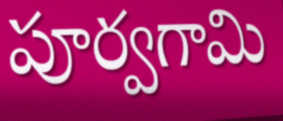
పూర్వగామి